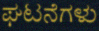
ಘಟನೆಗಳು